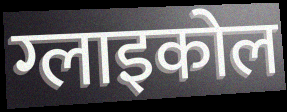
ग्लाइकोल